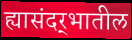
ह्यासंदर्भातील